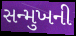
સન્મુખની